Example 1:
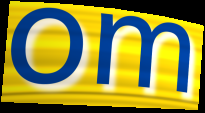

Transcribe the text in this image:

om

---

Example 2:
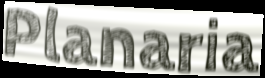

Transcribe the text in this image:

Planaria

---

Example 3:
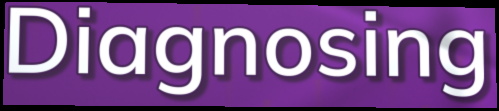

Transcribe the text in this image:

Diagnosing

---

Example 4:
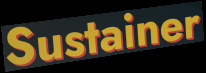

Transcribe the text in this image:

Sustainer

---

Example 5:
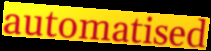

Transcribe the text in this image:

automatised